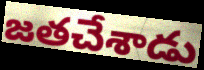
జతచేశాడు